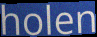
holen